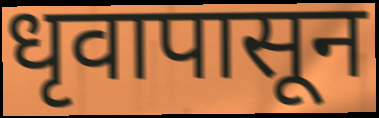
धृवापासून